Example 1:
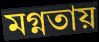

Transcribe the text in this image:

মগ্নতায়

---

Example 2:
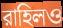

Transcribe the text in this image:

রাহিলও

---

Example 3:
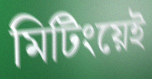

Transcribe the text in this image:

মিটিংয়েই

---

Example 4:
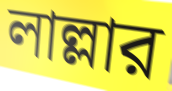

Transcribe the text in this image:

লাল্লার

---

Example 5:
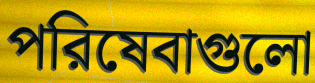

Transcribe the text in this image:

পরিষেবাগুলো